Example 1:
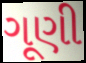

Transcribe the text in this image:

ગૂણી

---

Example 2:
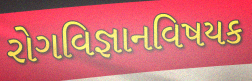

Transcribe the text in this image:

રોગવિજ્ઞાનવિષયક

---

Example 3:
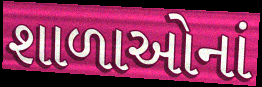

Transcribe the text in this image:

શાળાઓનાં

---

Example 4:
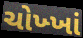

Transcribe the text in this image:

ચોખ્ખાં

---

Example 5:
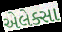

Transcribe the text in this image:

એલેક્સા